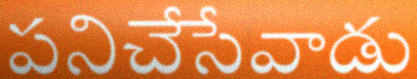
పనిచేసేవాడు